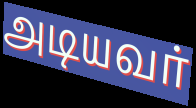
அடியவர்